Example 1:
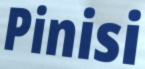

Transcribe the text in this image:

Pinisi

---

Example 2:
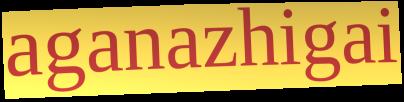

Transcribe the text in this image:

aganazhigai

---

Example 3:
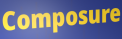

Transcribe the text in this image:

Composure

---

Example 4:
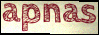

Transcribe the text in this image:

apnas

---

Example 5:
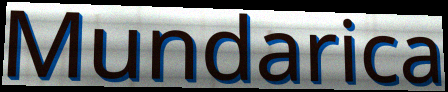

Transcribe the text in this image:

Mundarica